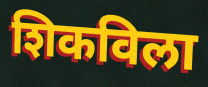
शिकविला